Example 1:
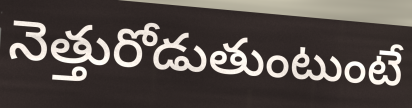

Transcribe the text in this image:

నెత్తురోడుతుంటుంటే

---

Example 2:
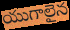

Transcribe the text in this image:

యుగాలైన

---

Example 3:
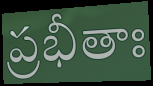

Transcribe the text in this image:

ప్రభీతాః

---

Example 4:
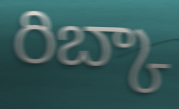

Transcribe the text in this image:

రిబ్కా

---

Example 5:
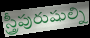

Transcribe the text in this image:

స్త్రీపురుషుల్ని